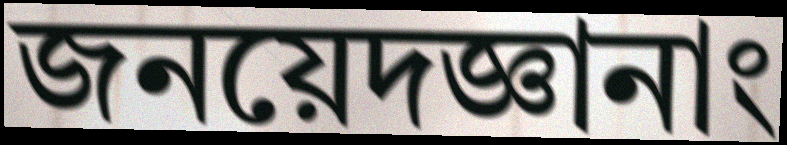
জনয়েদজ্ঞানাং